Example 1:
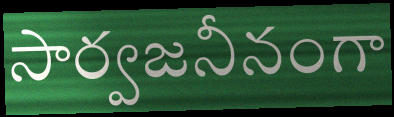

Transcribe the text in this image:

సార్వజనీనంగా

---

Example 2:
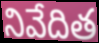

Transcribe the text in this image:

నివేదిత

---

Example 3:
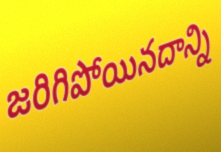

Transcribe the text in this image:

జరిగిపోయినదాన్ని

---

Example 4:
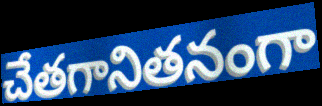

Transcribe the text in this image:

చేతగానితనంగా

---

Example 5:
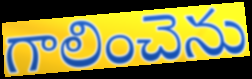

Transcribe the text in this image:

గాలించెను